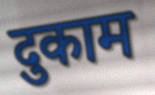
दुकाम